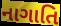
નાગાતિ